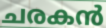
ചരകൻ